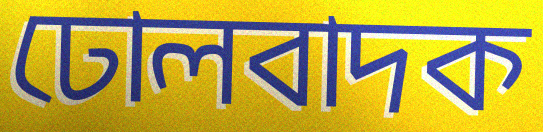
ঢোলবাদক